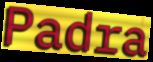
Padra